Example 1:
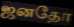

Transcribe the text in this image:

ஜனதோ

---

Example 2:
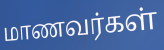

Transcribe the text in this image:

மாணவர்கள்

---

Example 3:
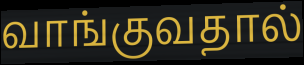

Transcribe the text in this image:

வாங்குவதால்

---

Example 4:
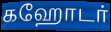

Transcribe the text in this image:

கஹோடர்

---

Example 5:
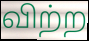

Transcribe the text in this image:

விற்ற